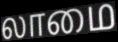
லாமை